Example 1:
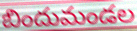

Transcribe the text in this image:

బిందుమండల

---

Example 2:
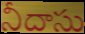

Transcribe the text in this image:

నీదాసు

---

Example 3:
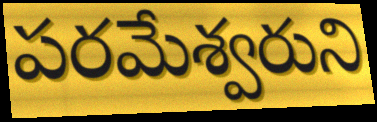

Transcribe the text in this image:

పరమేశ్వరుని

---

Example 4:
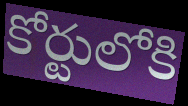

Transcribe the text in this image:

కోర్టులోకి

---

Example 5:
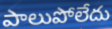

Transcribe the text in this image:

పాలుపోలేదు